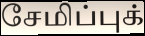
சேமிப்புக்